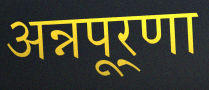
अन्नपूर्णा